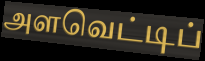
அளவெட்டிப்